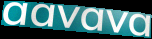
aavava